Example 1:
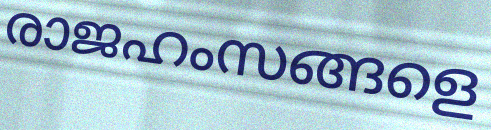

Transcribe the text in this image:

രാജഹംസങ്ങളെ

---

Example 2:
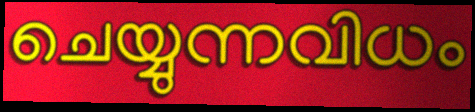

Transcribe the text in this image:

ചെയ്യുന്നവിധം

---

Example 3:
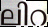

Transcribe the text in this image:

ലിറ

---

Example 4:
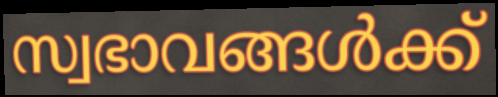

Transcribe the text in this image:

സ്വഭാവങ്ങൾക്ക്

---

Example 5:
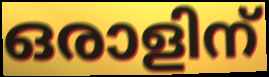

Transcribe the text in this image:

ഒരാളിന്